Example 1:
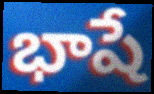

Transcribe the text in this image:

భాషే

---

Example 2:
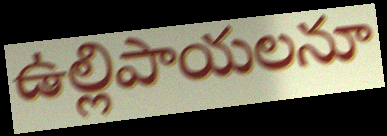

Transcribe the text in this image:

ఉల్లిపాయలనూ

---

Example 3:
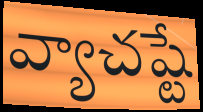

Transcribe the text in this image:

వ్యాచష్టే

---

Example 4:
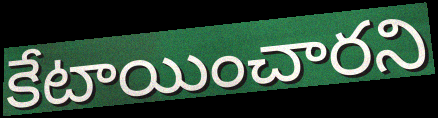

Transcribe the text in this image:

కేటాయించారని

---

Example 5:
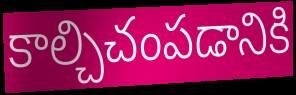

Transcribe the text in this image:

కాల్చిచంపడానికి